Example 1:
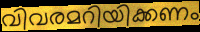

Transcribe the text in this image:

വിവരമറിയിക്കണം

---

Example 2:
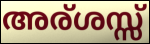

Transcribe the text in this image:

അര്ശസ്സ്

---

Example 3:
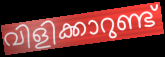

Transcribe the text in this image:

വിളിക്കാറുണ്ട്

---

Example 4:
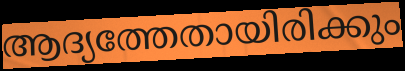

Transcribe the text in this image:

ആദ്യത്തേതായിരിക്കും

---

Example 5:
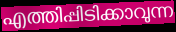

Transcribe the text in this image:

എത്തിപ്പിടിക്കാവുന്ന